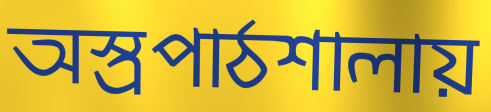
অস্ত্রপাঠশালায়